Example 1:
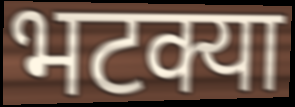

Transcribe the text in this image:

भटक्या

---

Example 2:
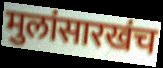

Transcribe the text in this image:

मुलांसारखंच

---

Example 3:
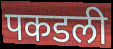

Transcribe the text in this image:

पकडली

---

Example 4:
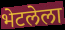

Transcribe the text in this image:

भेटलेला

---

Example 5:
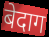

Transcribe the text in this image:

बेदाग